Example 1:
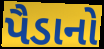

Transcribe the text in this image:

પૈડાનો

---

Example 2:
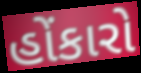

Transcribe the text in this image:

હોંકારો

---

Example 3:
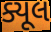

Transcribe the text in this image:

ક્યૂલ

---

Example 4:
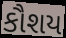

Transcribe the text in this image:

કૌશય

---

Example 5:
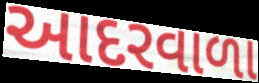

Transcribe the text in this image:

આદરવાળા